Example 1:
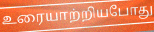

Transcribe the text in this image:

உரையாற்றியபோது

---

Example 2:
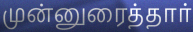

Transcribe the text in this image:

முன்னுரைத்தார்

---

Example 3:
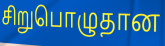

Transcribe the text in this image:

சிறுபொழுதான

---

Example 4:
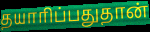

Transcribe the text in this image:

தயாரிப்பதுதான்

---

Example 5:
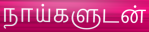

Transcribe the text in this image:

நாய்களுடன்